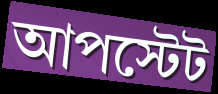
আপস্টেট